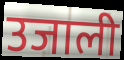
उजाली